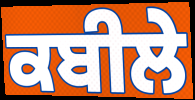
ਕਬੀਲੇ